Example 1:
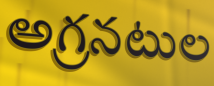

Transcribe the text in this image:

అగ్రనటుల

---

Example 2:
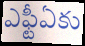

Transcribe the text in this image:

ఎఫ్టీఏకు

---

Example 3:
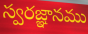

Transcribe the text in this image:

స్వరజ్ఞానము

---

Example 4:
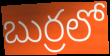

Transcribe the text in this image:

బుర్రలో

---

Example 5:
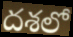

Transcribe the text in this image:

దశలో